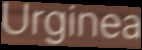
Urginea